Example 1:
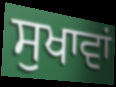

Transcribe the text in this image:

ਸੁਖਾਵਾਂ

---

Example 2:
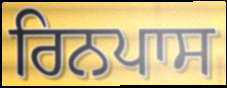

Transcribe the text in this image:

ਰਿਨਪਾਸ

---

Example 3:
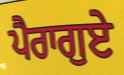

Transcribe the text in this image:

ਪੈਰਾਗੁਏ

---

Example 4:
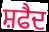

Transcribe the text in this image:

ਸ਼ਫੈਦ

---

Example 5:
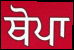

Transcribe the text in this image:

ਥੋਪਾ